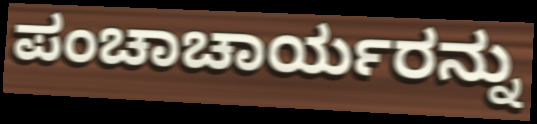
ಪಂಚಾಚಾರ್ಯರನ್ನು